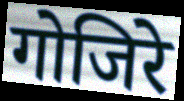
गोजिरे